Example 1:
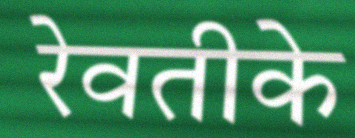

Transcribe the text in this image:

रेवतीके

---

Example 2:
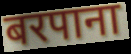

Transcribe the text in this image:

बरपाना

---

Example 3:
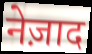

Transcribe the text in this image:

नेज़ाद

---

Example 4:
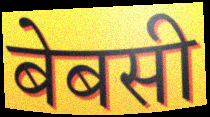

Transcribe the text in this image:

बेबसी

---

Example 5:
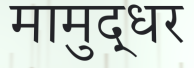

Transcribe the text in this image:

मामुद्धर